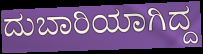
ದುಬಾರಿಯಾಗಿದ್ದ